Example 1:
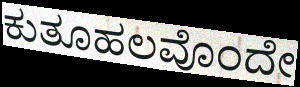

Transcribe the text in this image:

ಕುತೂಹಲವೊಂದೇ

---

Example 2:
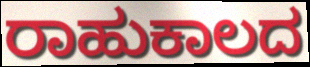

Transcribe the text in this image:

ರಾಹುಕಾಲದ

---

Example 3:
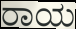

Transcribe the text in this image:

ರಾಯ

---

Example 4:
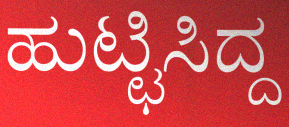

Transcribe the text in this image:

ಹುಟ್ಟಿಸಿದ್ದ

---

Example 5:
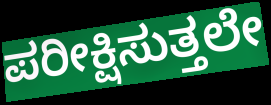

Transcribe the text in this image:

ಪರೀಕ್ಷಿಸುತ್ತಲೇ